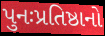
પુનઃપ્રતિષ્ઠાનો